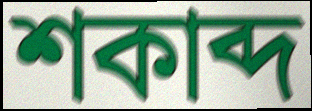
শকাব্দ